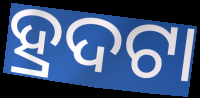
ହ୍ରଦଟା